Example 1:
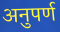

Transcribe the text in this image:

अनुपर्ण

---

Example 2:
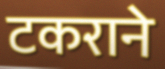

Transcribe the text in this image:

टकराने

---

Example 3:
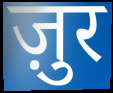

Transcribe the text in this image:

ज़ुर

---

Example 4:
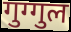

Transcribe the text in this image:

गुग्गुल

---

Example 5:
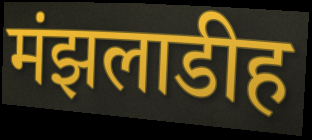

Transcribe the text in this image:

मंझलाडीह